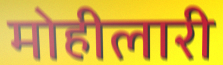
मोहीलारी